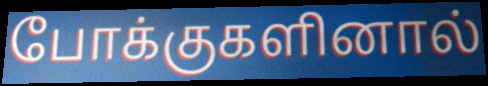
போக்குகளினால்